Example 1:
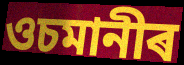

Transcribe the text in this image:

ওচমানীৰ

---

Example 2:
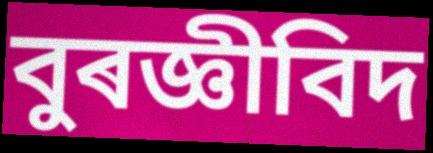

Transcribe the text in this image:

বুৰজ্ঞীবিদ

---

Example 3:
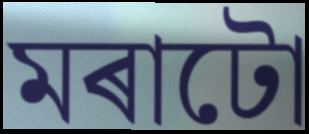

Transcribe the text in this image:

মৰাটো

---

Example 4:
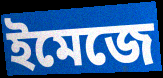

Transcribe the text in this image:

ইমেজে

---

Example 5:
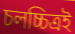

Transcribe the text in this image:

চলচ্চিত্ৰই